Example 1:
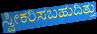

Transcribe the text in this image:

ಸ್ವೀಕರಿಸಬಹುದಿತ್ತು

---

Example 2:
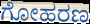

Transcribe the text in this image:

ಗೋಹರಣ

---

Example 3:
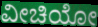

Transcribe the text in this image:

ವೀಚಿಯೋ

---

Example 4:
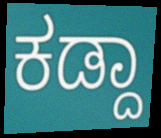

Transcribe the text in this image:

ಕಡ್ದಾ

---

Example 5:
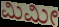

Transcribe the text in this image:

ಮಿಮೀ